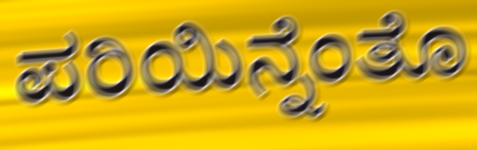
ಪರಿಯಿನ್ನೆಂತೊ